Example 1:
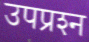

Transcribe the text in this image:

उपप्रश्‍न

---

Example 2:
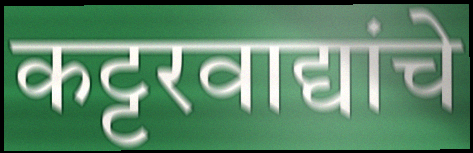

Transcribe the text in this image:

कट्टरवाद्यांचे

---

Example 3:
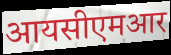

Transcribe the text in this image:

आयसीएमआर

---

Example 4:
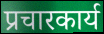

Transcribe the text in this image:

प्रचारकार्य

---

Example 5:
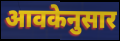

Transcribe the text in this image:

आवकेनुसार